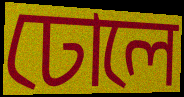
ঢোলে